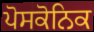
ਪੋਸਕੋਨਿਕ